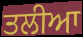
ਤਲੀਆ